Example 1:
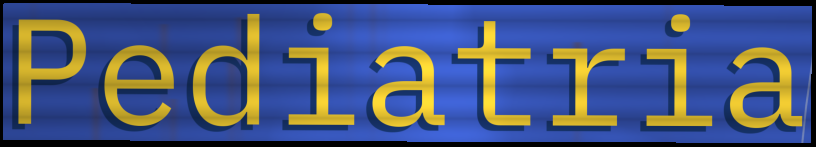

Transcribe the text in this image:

Pediatria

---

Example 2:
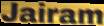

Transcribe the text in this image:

Jairam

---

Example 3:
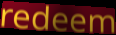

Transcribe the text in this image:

redeem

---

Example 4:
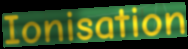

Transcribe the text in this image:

Ionisation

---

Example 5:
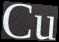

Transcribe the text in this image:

Cu